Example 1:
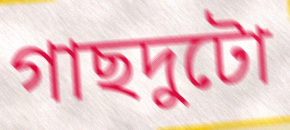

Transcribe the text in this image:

গাছদুটো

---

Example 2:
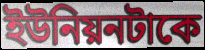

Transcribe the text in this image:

ইউনিয়নটাকে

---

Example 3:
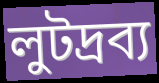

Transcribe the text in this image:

লুটদ্রব্য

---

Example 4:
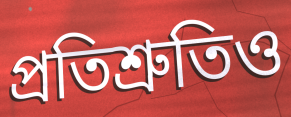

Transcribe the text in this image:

প্রতিশ্রুতিও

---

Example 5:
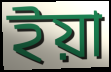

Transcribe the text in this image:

ইয়া